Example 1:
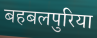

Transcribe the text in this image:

बहबलपुरिया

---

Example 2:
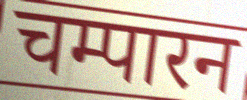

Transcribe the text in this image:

चम्पारन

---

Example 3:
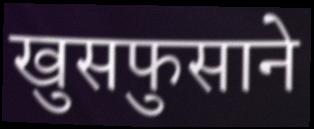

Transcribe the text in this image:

खुसफुसाने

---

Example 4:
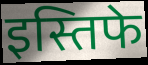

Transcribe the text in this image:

इस्तिफे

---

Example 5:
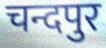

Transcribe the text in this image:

चन्दपुर